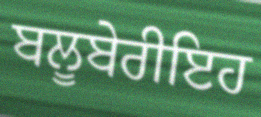
ਬਲੂਬੇਰੀਇਹ